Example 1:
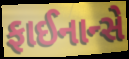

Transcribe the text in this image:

ફાઈનાન્સે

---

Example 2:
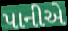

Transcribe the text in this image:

પાનીએ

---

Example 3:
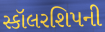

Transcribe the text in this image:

સ્કૉલરશિપની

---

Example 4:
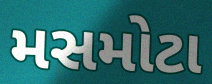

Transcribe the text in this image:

મસમોટા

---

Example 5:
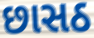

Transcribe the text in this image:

છાસઠ